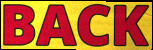
BACK